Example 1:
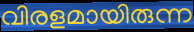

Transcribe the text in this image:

വിരളമായിരുന്ന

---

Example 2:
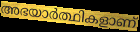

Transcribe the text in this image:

അഭയാർത്ഥികളാണ്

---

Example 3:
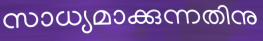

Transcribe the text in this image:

സാധ്യമാക്കുന്നതിനു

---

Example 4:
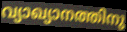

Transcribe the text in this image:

വ്യാഖ്യാനത്തിനു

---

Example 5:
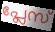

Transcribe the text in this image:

പ്ലേസ്